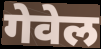
गेवेल